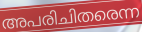
അപരിചിതരെന്ന